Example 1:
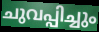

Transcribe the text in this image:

ചുവപ്പിച്ചും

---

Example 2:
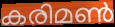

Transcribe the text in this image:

കരിമൺ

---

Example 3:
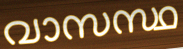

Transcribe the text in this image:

വാസസ്ഥ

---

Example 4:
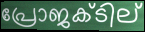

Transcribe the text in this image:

പ്രോജക്ടില്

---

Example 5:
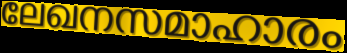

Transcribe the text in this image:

ലേഖനസമാഹാരം